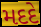
મદદે